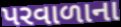
પરવાળાના